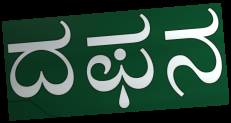
ದಫನ